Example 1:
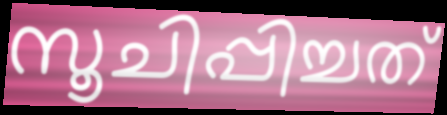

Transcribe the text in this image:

സൂചിപ്പിച്ചത്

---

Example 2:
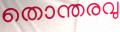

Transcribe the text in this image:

തൊന്തരവു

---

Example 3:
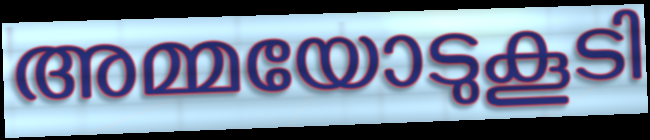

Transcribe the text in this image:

അമ്മയോടുകൂടി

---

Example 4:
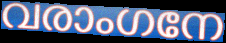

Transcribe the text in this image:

വരാംഗനേ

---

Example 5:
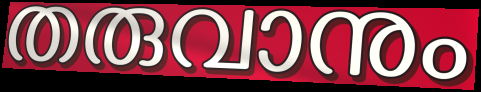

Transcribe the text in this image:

തരുവാനും